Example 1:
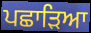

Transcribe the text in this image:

ਪਛਾੜਿਆ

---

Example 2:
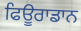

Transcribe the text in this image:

ਫਿਊਰਾਡਾਨ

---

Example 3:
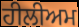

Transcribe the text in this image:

ਹੀਲੀਅਮ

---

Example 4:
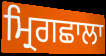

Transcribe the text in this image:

ਮ੍ਰਿਗਛਾਲਾ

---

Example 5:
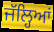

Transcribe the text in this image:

ਜੱਲ੍ਹਿਆਂ